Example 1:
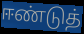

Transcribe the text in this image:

ஈண்டுத்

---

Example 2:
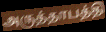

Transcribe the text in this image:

அருத்தாபத்தி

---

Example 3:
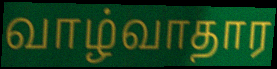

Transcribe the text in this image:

வாழ்வாதார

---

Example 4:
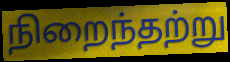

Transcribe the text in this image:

நிறைந்தற்று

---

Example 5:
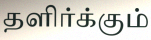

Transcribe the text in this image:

தளிர்க்கும்